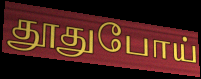
தூதுபோய்